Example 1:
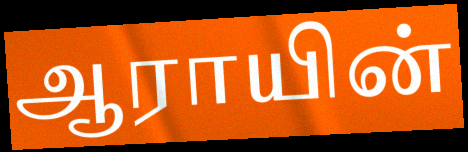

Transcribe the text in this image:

ஆராயின்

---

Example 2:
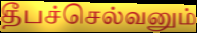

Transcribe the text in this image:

தீபச்செல்வனும்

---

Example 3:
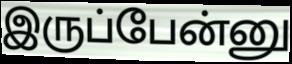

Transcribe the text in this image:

இருப்பேன்னு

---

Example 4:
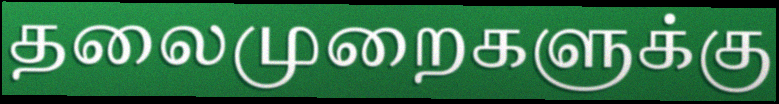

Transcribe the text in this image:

தலைமுறைகளுக்கு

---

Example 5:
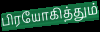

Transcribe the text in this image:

பிரயோகித்தும்